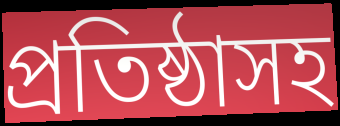
প্রতিষ্ঠাসহ